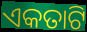
ଏକତାଟି